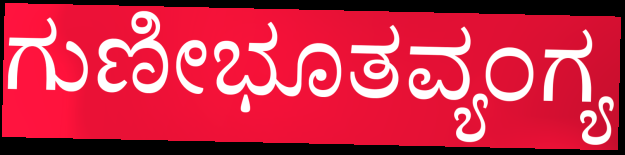
ಗುಣೀಭೂತವ್ಯಂಗ್ಯ